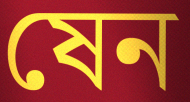
ষেন